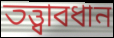
তত্ত্বাবধান